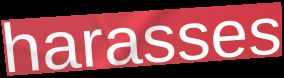
harasses